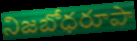
నిజబోధరూపా